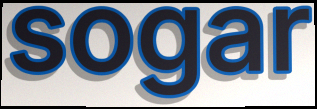
sogar